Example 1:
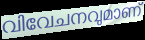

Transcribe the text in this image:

വിവേചനവുമാണ്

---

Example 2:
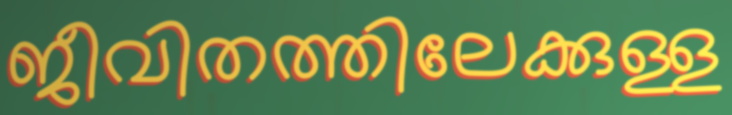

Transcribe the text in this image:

ജീവിതത്തിലേക്കുള്ള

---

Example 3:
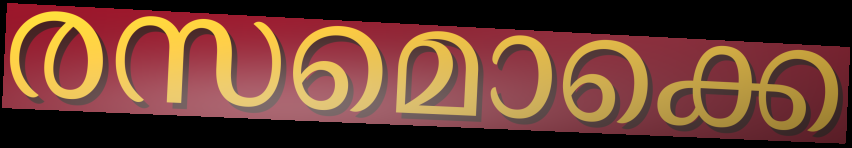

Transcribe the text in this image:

രസമൊക്കെ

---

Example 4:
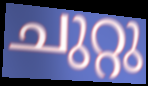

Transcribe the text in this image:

ചുറ്റു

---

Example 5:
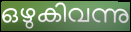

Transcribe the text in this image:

ഒഴുകിവന്നു